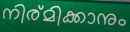
നിര്മിക്കാനും